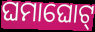
ଘମାଘୋଟ୍